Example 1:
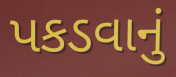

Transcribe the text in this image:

પકડવાનું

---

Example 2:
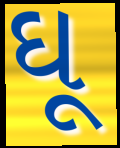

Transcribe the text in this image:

ઘૂ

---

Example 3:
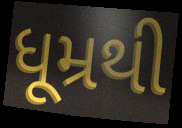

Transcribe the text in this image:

ધૂમ્રથી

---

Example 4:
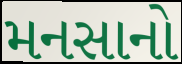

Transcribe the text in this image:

મનસાનો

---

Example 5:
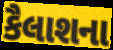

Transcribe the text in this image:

કૈલાશના